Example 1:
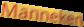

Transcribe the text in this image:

Manneken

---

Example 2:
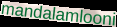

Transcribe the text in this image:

mandalamlooni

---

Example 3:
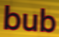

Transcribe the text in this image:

bub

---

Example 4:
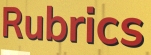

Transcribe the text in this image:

Rubrics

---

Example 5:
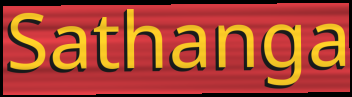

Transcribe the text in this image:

Sathanga